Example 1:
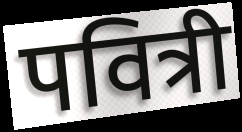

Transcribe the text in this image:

पवित्री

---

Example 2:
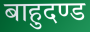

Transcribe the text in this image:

बाहुदण्ड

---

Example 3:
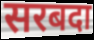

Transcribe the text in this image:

सरबदा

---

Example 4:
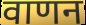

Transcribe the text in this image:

वाणन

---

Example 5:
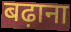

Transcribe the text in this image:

बढ़ाना